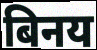
बिनय